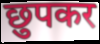
छुपकर